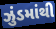
ઝુંડમાંથી